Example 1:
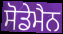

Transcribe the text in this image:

ਸੋਡੇਮੈਨ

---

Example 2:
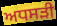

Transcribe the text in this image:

ਅਧਸੜੀ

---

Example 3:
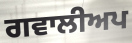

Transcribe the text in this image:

ਗਵਾਲੀਅਪ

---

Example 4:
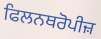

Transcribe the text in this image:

ਫਿਲਨਥਰੋਪੀਜ਼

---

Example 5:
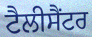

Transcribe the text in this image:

ਟੈਲੀਸੈਂਟਰ